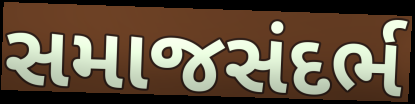
સમાજસંદર્ભ